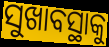
ସୁଖାବସ୍ଥାକୁ